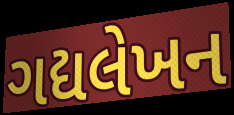
ગદ્યલેખન